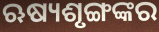
ଋଷ୍ୟଶୃଙ୍ଗଙ୍କର